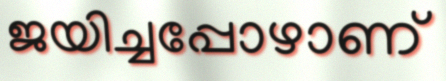
ജയിച്ചപ്പോഴാണ്